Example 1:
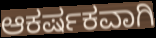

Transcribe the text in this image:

ಆಕರ್ಷಕವಾಗಿ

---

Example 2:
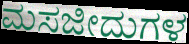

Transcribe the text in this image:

ಮಸಜೀದುಗಳ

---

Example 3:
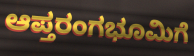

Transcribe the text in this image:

ಆಪ್ತರಂಗಭೂಮಿಗೆ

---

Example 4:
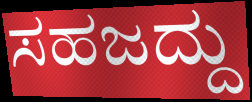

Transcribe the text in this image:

ಸಹಜದ್ದು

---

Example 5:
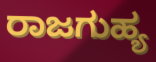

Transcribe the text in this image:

ರಾಜಗುಹ್ಯ